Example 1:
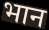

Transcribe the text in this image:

भान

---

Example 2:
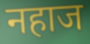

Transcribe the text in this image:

नहाज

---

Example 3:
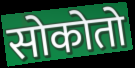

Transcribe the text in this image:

सोकोतो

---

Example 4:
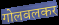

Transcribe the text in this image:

गोलवलकर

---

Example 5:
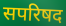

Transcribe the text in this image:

सपरिषद